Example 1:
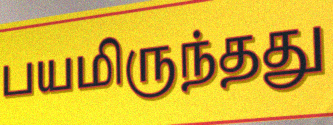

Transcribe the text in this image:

பயமிருந்தது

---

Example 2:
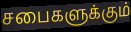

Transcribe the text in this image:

சபைகளுக்கும்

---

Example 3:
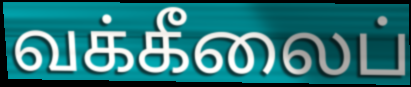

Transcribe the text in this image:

வக்கீலைப்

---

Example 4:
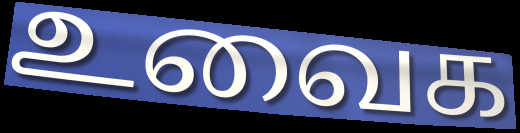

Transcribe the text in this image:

உவைக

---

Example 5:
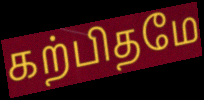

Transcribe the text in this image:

கற்பிதமே